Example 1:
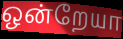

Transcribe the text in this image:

ஒன்றேயா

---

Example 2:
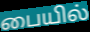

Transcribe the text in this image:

பையில்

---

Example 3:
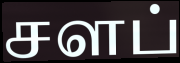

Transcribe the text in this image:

சளப்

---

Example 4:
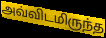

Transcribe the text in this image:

அவ்விடமிருந்த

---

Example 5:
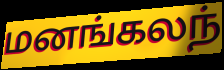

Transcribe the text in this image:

மனங்கலந்